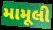
મામૂલી